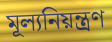
মূল্যনিয়ন্ত্রণ